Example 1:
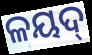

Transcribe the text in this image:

ଳୟଦ୍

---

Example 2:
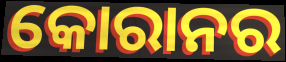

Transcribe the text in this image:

କୋରାନର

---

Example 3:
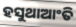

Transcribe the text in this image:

ହସୁଥାଆଂତି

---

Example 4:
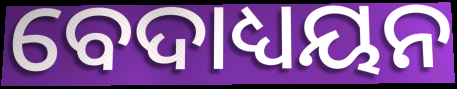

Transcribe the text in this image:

ବେଦାଧ୍ୟୟନ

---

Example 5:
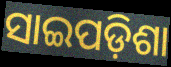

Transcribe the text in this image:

ସାଇପଡ଼ିଶା